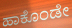
ಹಾಕೊಂಡೇ